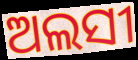
ଅଲସୀ